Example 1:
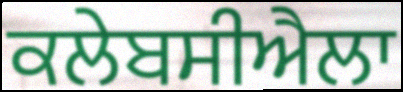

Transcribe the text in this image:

ਕਲੇਬਸੀਐਲਾ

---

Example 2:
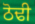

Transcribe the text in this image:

ਠੋਢੀ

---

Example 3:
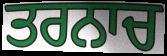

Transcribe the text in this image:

ਤਰਨਾਚ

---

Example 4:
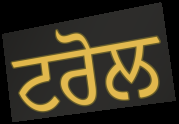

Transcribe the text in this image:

ਟਰੋਲ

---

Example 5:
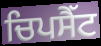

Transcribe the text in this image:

ਚਿਪਸੈੱਟ